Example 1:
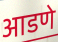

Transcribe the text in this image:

आडणे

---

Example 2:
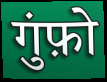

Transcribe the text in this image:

गुंफ़ो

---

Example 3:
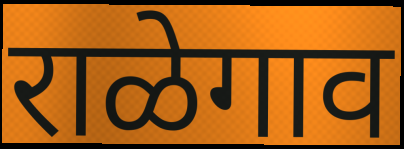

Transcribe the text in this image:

राळेगाव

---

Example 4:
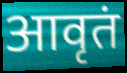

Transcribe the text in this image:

आवृतं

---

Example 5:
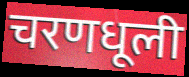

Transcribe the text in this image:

चरणधूली